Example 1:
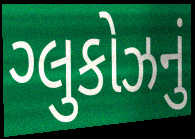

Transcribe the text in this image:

ગ્લુકોઝનું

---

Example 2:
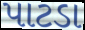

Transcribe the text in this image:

પાટડા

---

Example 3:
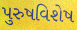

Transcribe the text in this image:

પુરુષવિશેષ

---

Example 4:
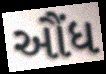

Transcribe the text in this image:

ઔંધ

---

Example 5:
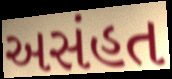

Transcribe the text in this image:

અસંહત